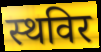
स्थविर